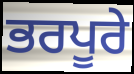
ਭਰਪੂਰੇ